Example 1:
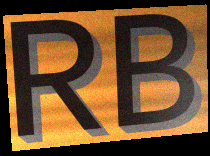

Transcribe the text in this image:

RB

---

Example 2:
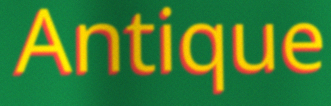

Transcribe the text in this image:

Antique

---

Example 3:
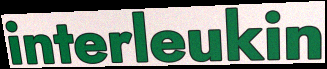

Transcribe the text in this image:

interleukin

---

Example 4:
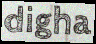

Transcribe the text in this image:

digha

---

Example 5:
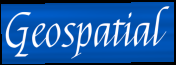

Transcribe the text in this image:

Geospatial